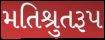
મતિશ્રુતરૂપ